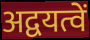
अद्वयत्वें